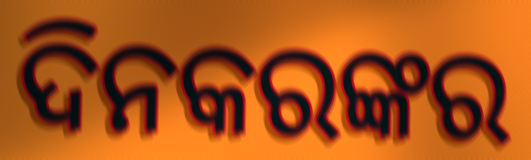
ଦିନକରଙ୍କର